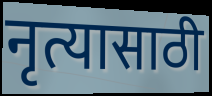
नृत्यासाठी